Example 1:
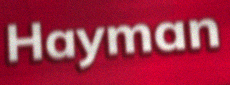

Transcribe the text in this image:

Hayman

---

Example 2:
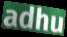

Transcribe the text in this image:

adhu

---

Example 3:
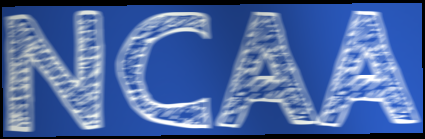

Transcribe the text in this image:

NCAA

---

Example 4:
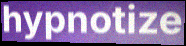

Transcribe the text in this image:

hypnotize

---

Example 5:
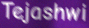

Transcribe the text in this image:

Tejashwi